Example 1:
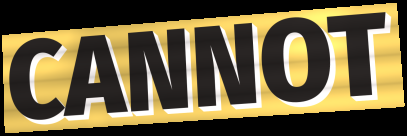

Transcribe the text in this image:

CANNOT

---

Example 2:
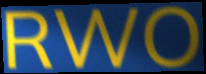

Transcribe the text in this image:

RWO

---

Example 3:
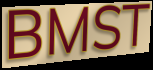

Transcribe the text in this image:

BMST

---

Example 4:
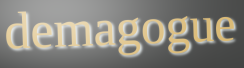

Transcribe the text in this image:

demagogue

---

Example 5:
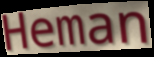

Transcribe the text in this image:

Heman